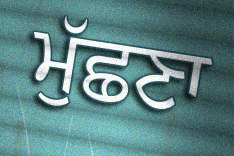
ਮੁੱਛਣਾ